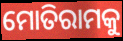
ମୋତିରାମକୁ